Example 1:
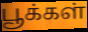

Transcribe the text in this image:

பூக்கள்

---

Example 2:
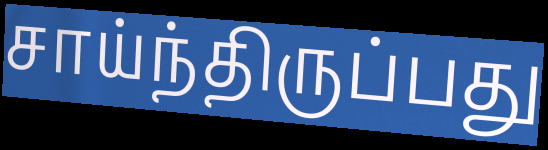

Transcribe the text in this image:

சாய்ந்திருப்பது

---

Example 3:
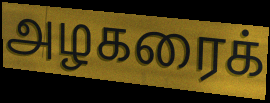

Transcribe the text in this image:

அழகரைக்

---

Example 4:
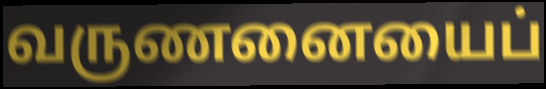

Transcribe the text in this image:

வருணனையைப்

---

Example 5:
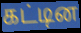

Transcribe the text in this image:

கட்டின